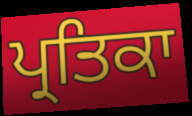
ਪ੍ਰਤਿਕਾ